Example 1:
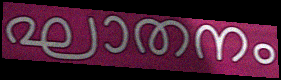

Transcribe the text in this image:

ഘാതനം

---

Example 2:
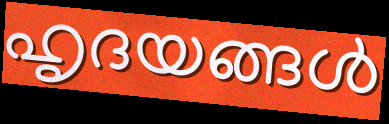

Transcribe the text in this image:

ഹൃദയങ്ങൾ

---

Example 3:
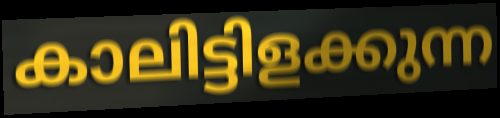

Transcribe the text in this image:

കാലിട്ടിളക്കുന്ന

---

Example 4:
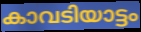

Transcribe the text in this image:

കാവടിയാട്ടം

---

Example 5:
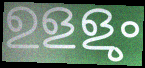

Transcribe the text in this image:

ഉളളും